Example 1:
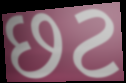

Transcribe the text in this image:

છટ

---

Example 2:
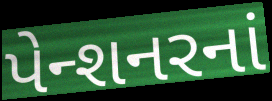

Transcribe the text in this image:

પેન્શનરનાં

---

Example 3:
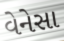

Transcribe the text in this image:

વેનેસા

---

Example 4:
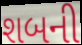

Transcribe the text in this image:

શબની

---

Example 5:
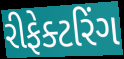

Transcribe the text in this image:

રીફેક્ટરિંગ